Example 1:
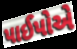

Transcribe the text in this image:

પાઈપોએ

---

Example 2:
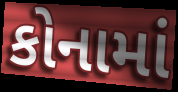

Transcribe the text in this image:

કોનામાં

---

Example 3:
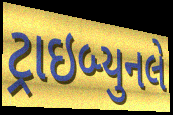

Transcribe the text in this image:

ટ્રાઇબ્યુનલે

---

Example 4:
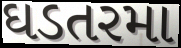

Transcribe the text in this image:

ઘડતરમા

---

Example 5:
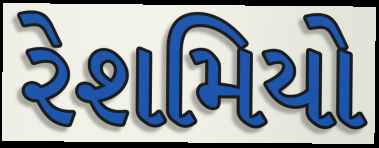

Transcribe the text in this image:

રેશમિયો